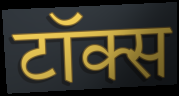
टॉक्स